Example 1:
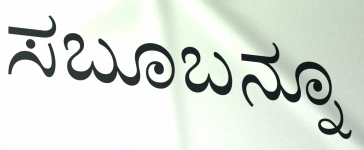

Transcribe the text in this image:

ಸಬೂಬನ್ನೂ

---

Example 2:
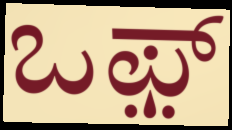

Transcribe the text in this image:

ಒಫ಼್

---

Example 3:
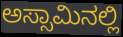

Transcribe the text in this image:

ಅಸ್ಸಾಮಿನಲ್ಲಿ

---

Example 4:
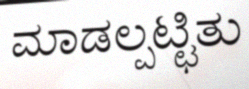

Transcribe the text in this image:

ಮಾಡಲ್ಪಟ್ಟಿತು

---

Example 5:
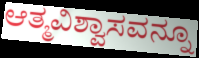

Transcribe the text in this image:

ಆತ್ಮವಿಶ್ವಾಸವನ್ನೂ